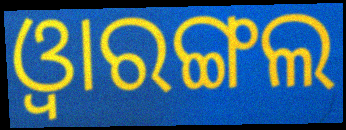
ଓ୍ବାରଙ୍ଗଲ